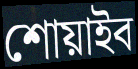
শোয়াইব